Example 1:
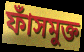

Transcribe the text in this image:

ফাঁসমুক্ত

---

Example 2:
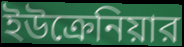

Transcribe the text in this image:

ইউক্রেনিয়ার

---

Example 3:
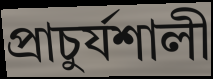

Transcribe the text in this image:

প্রাচুর্যশালী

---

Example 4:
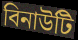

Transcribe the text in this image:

বিনাউটি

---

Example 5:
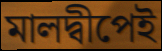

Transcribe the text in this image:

মালদ্বীপেই